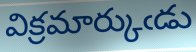
విక్రమార్కుఁడు